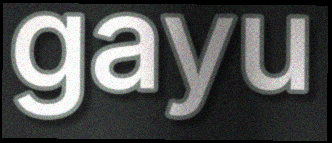
gayu